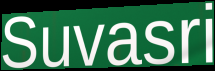
Suvasri